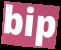
bip